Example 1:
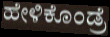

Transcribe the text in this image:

ಹೇಳಿಕೊಂಡ್ರೆ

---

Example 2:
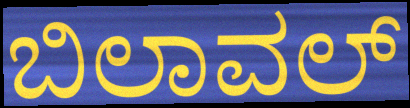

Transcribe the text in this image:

ಬಿಲಾವಲ್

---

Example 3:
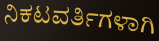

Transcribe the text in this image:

ನಿಕಟವರ್ತಿಗಳಾಗಿ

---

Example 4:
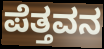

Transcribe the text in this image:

ಪೆತ್ತವನ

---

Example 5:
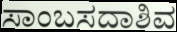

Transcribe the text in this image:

ಸಾಂಬಸದಾಶಿವ